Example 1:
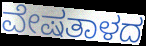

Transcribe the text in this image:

ವೇಷತಾಳದ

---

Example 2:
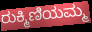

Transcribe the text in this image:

ರುಕ್ಮಿಣಿಯಮ್ಮ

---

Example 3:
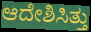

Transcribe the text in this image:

ಆದೇಶಿಸಿತ್ತು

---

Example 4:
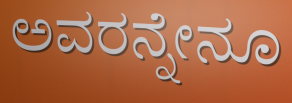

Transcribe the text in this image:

ಅವರನ್ನೇನೂ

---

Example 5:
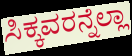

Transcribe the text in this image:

ಸಿಕ್ಕವರನ್ನೆಲ್ಲಾ